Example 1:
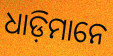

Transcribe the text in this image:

ଧାଡ଼ିମାନେ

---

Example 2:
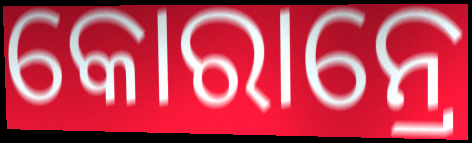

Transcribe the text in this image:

କୋରାନ୍ରେ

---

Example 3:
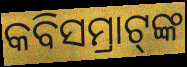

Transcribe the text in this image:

କବିସମ୍ରାଟ୍‌ଙ୍କ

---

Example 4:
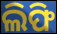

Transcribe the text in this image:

ଲିଫି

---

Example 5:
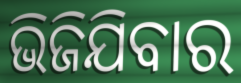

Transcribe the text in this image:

ଭିଜିଯିବାର